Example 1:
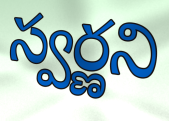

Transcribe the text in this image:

స్వర్ణని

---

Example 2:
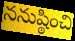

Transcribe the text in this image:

ననుష్ఠించి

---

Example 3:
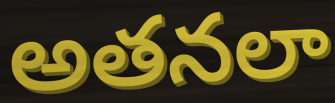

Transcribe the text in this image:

అతనలా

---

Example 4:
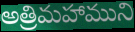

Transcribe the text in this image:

అత్రిమహాముని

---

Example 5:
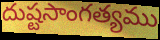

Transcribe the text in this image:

దుష్టసాంగత్యము